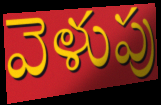
వెళుపు